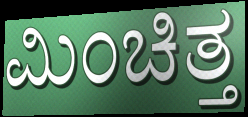
ಮಿಂಚಿತ್ತ